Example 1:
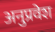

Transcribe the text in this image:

अनुप्रवेश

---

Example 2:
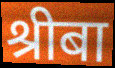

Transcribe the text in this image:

श्रीबा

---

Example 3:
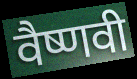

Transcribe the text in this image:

वैष्णवी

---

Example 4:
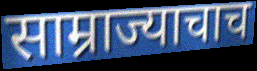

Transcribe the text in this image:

साम्राज्याचाच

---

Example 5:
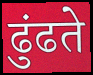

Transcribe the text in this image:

ढुंढते